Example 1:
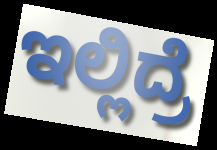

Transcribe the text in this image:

ಇಲ್ಲಿದ್ರೆ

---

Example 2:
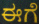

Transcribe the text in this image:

ಈಗೆ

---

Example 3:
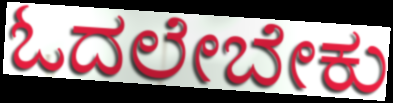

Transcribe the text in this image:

ಓದಲೇಬೇಕು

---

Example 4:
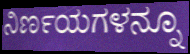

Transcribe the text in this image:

ನಿರ್ಣಯಗಳನ್ನೂ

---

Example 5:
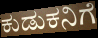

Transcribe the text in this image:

ಕುಡುಕನಿಗೆ